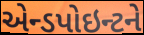
એન્ડપોઇન્ટને